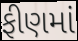
ફીણમાં